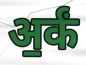
अ॒र्कं